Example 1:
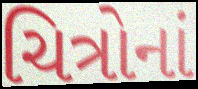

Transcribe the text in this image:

ચિત્રોનાં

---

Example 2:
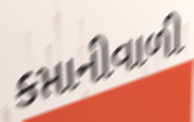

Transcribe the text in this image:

કપ્તાનીવાળી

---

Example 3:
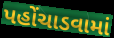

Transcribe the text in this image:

પહોંચાડવામાં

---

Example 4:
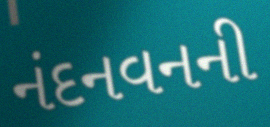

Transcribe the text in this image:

નંદનવનની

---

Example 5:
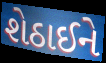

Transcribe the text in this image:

શેઠાઈને